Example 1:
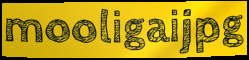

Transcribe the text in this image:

mooligaijpg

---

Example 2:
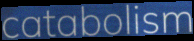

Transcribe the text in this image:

catabolism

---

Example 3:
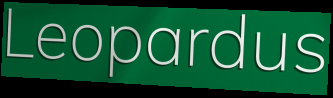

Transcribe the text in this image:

Leopardus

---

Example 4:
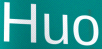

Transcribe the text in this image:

Huo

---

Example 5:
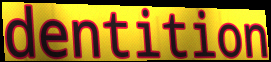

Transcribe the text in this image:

dentition